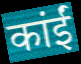
कांईं